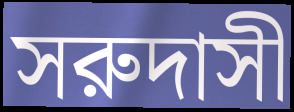
সরুদাসী